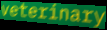
veterinary